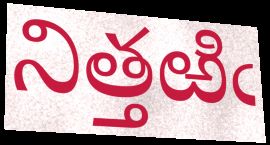
నిత్తఱిఁ